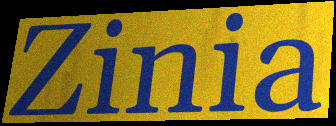
Zinia